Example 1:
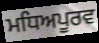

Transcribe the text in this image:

ਮਧਿਅਪੂਰਵ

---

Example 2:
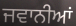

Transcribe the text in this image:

ਜਵਾਨੀਆਂ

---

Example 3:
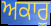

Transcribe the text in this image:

ਅਕਾਰੁ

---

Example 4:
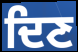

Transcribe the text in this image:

ਦਿਣ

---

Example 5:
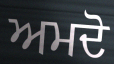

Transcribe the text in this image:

ਅਮਦੋ